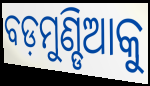
ବଡ଼ମୁଣ୍ଡିଆକୁ